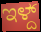
ಇಳ್ದ್